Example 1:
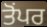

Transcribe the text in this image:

ਤੋਂਪਰ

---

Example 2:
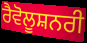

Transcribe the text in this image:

ਰੈਵੋਲੂਸ਼ਨਰੀ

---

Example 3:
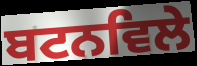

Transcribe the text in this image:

ਬਟਨਵਿਲੇ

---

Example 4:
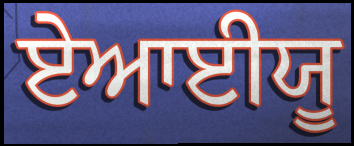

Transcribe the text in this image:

ਏਆਈਯੂ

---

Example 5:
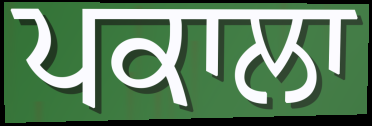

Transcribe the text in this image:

ਪਕਾਲਾ